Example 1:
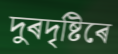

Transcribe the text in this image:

দুৰদৃষ্টিৰে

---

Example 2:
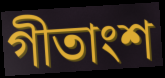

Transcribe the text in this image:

গীতাংশ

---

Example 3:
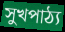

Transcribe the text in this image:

সুখপাঠ্য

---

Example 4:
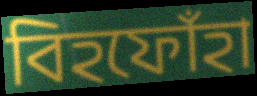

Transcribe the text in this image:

বিহফোঁহা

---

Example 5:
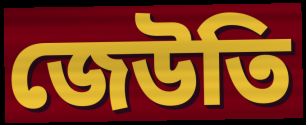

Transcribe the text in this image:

জেউতি